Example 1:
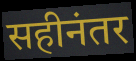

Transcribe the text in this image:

सहीनंतर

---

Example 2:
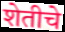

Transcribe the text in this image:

शेतीचे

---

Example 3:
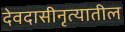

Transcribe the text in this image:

देवदासीनृत्यातील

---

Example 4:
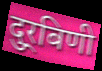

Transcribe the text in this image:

दुर्बिणी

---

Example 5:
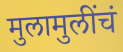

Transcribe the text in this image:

मुलामुलींचं